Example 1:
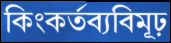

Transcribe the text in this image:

কিংকর্তব্যবিমূঢ়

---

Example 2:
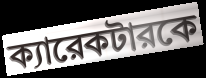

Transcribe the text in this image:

ক্যারেকটারকে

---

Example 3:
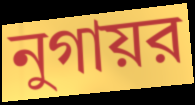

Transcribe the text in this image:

নুগায়র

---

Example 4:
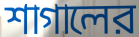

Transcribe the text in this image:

শাগালের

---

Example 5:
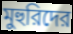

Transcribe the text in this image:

মুহুরিদের